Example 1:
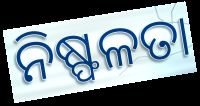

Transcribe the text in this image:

ନିଷ୍ଫଳତା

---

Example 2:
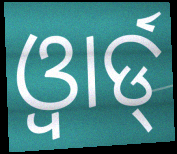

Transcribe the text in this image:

ଓ୍ୱାର୍ଡ୍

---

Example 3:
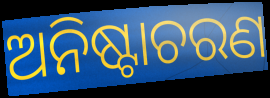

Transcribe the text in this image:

ଅନିଷ୍ଟାଚରଣ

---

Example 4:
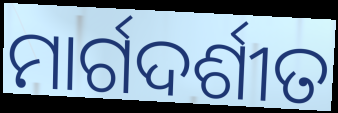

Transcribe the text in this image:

ମାର୍ଗଦର୍ଶୀତ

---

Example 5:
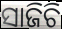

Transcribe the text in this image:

ସାଜିଚି